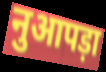
नुआपड़ा